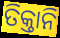
ତିକ୍ତାନି